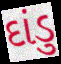
દાંડુ